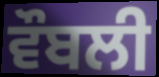
ਵੌਬਲੀ